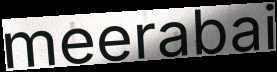
meerabai